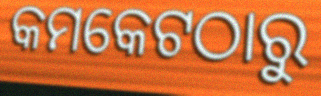
କମକେଟଠାରୁ